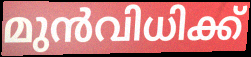
മുൻവിധിക്ക്